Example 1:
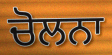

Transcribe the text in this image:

ਚੋਲਨਾ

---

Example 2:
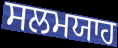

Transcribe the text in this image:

ਸਲਮਯਾਹ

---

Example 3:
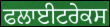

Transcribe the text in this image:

ਫਲਾਈਟਰੇਕਸ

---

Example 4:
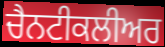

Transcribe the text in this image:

ਚੈਨਟੀਕਲੀਅਰ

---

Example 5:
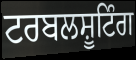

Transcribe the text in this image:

ਟਰਬਲਸ਼ੂਟਿੰਗ